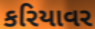
કરિયાવર